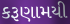
કરૂણામયી